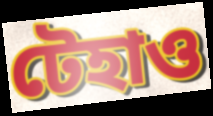
টেহাও